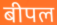
बीपल